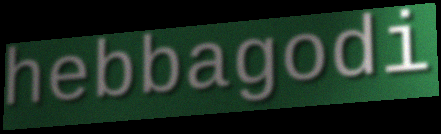
hebbagodi